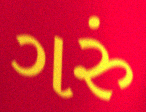
ગરું